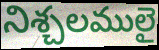
నిశ్చలములై